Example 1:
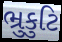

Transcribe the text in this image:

ભ્રુકુટિ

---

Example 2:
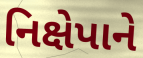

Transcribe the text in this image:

નિક્ષેપાને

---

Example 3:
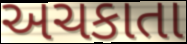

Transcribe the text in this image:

અચકાતા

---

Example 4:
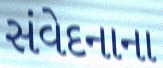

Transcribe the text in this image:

સંવેદનાના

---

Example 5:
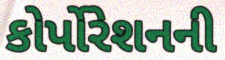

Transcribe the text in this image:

કોર્પોરેશનની